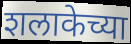
शलाकेच्या